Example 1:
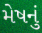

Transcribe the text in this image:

મેષનું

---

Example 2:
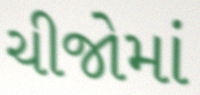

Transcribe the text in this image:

ચીજોમાં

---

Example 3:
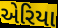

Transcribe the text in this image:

એરિયા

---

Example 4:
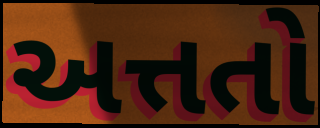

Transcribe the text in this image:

અત્તતો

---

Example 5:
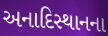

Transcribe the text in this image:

અનાદિસ્થાનના